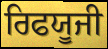
ਰਿਫਯੂਜੀ